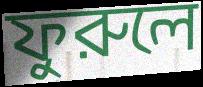
ফুরুলে